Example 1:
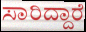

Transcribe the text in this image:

ಸಾರಿದ್ದಾರೆ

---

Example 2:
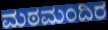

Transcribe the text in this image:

ಮಠಮಂದಿರ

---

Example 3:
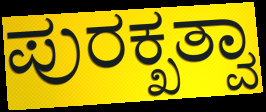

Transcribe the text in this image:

ಪುರಕ್ಖತ್ವಾ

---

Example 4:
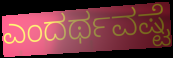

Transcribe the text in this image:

ಎಂದರ್ಥವಷ್ಟೆ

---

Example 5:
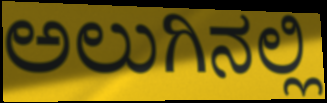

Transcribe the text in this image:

ಅಲುಗಿನಲ್ಲಿ